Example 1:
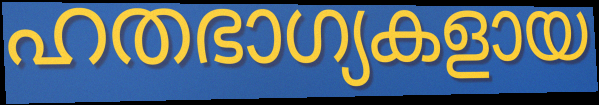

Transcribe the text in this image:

ഹതഭാഗ്യകളായ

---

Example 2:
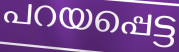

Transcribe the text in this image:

പറയപ്പെട്ട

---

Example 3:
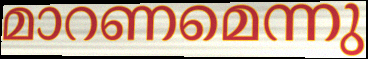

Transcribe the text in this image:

മാറണമെന്നു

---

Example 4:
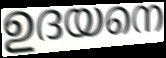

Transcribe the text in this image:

ഉദയനെ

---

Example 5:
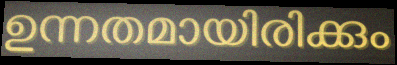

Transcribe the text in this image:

ഉന്നതമായിരിക്കും